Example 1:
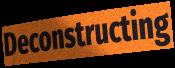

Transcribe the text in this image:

Deconstructing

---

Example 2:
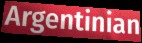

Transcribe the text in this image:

Argentinian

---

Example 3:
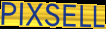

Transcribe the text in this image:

PIXSELL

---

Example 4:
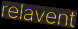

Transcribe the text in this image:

relavent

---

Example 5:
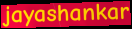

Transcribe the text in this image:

jayashankar